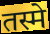
तस्मे